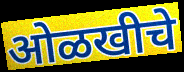
ओळखीचे